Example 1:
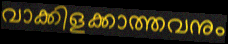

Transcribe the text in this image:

വാക്കിളക്കാത്തവനും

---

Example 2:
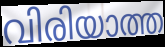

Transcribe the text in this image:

വിരിയാത്ത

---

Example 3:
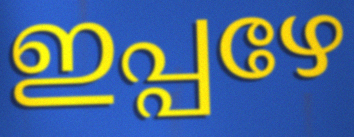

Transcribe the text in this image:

ഇപ്പഴേ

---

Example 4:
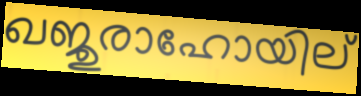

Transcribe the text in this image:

ഖജുരാഹോയില്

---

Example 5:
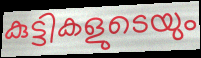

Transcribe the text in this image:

കുട്ടികളുടെയും